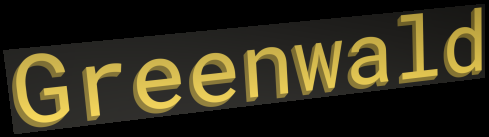
Greenwald